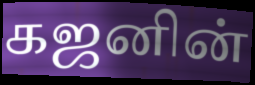
கஜனின்